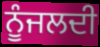
ਨੂੰਜਲਦੀ